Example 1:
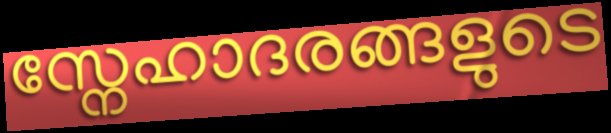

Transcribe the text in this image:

സ്നേഹാദരങ്ങളുടെ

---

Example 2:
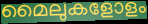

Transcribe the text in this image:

മൈലുകളോളം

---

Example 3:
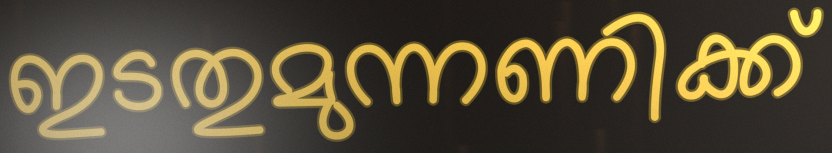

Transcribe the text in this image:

ഇടതുമുന്നണിക്ക്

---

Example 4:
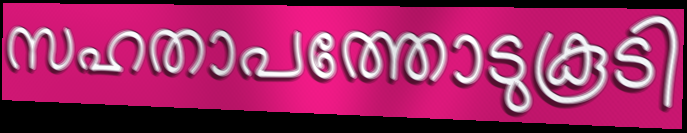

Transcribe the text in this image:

സഹതാപത്തോടുകൂടി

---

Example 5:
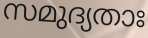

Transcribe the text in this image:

സമുദ്യതാഃ